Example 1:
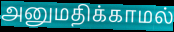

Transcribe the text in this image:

அனுமதிக்காமல்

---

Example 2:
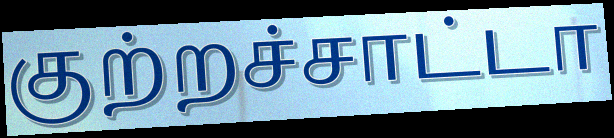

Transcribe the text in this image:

குற்றச்சாட்டா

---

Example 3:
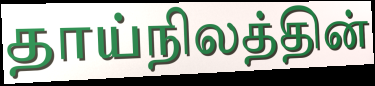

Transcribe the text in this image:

தாய்நிலத்தின்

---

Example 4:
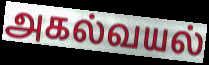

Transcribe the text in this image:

அகல்வயல்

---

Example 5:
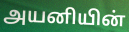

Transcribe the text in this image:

அயனியின்